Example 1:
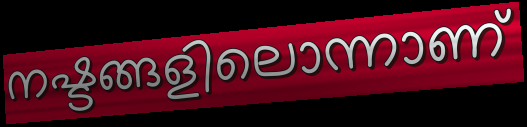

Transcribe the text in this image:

നഷ്ടങ്ങളിലൊന്നാണ്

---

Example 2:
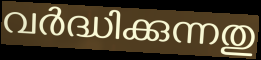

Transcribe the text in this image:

വർദ്ധിക്കുന്നതു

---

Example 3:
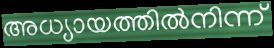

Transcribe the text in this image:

അധ്യായത്തിൽനിന്ന്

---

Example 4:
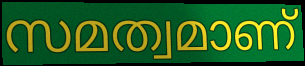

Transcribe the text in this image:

സമത്വമാണ്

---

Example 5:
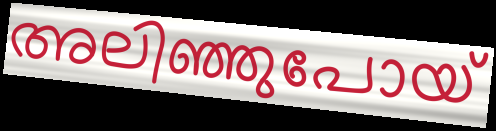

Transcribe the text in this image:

അലിഞ്ഞുപോയ്